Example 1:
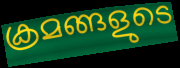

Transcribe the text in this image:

ക്രമങ്ങളുടെ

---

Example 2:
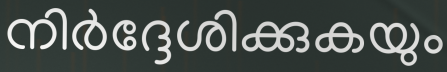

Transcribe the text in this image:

നിർദ്ദേശിക്കുകയും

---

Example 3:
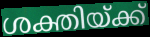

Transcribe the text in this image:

ശക്തിയ്ക്ക്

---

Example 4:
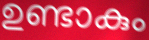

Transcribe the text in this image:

ഉണ്ടാകും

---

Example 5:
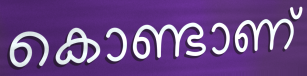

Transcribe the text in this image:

കൊണ്ടാണ്